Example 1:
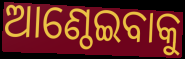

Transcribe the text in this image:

ଆଣ୍ଠେଇବାକୁ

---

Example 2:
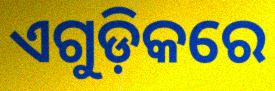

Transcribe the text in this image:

ଏଗୁଡ଼ିକରେ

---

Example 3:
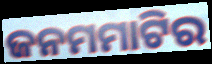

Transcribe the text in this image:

ଜନମମାଟିର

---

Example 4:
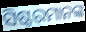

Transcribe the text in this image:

ସିଷ୍ଟରମାନଙ୍କ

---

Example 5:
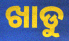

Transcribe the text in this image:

ଖାଡୁ